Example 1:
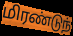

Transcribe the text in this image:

மிரண்டுந்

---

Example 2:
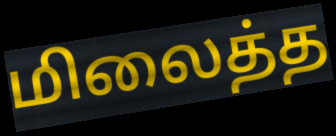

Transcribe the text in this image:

மிலைத்த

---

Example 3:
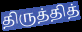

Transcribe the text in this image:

திருத்தித்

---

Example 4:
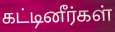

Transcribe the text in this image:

கட்டினீர்கள்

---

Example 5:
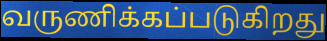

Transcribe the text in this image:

வருணிக்கப்படுகிறது